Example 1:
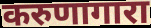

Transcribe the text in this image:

करुणागारा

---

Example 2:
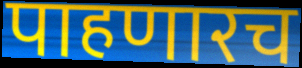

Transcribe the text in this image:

पाहणारच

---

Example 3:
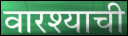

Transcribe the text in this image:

वारश्याची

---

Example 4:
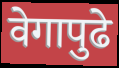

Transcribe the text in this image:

वेगापुढे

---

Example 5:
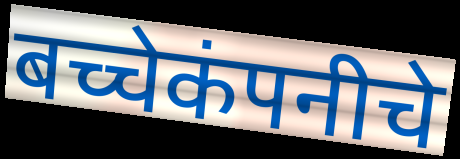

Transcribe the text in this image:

बच्चेकंपनीचे